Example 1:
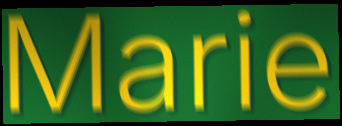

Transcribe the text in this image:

Marie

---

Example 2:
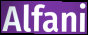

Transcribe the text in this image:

Alfani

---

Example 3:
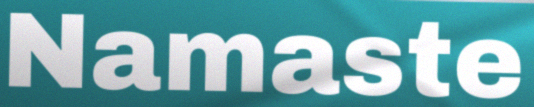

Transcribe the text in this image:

Namaste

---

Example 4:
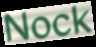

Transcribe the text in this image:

Nock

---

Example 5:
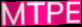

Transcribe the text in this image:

MTPE